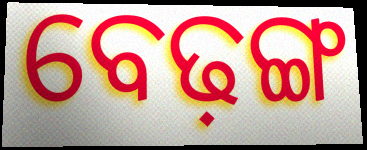
ବେଢ଼ଙ୍ଗ